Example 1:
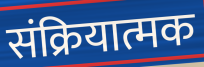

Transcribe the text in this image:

संक्रियात्मक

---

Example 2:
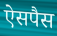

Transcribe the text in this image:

ऐसपैस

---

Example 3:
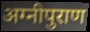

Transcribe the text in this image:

अग्नीपुराण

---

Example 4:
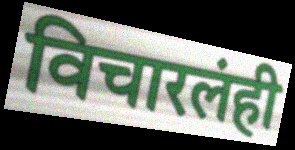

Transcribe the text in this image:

विचारलंही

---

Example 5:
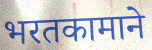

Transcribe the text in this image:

भरतकामाने